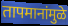
तापमानांमुळे